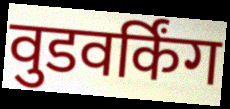
वुडवर्किंग